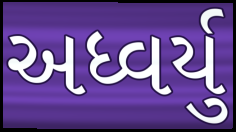
અધ્વર્યુ